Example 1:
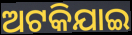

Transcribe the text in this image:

ଅଟକିଯାଇ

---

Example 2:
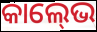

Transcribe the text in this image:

କାଲ୍‍ଭେ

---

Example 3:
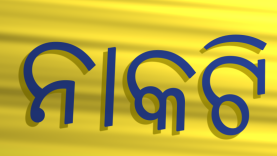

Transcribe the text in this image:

ନାକଟି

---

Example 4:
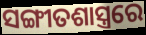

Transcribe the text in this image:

ସଙ୍ଗୀତଶାସ୍ତ୍ରରେ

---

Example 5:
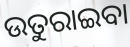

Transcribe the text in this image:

ଉତୁରାଇବା